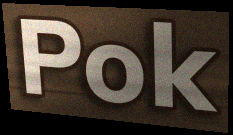
Pok